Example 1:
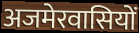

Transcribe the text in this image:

अजमेरवासियों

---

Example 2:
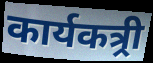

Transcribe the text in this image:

कार्यकत्र्री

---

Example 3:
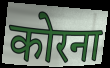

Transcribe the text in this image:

कोरना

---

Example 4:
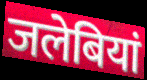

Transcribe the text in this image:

जलेबियां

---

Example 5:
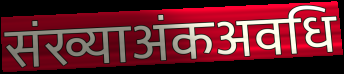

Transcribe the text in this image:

संख्याअंकअवधि